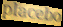
placebo